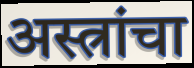
अस्त्रांचा